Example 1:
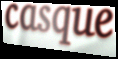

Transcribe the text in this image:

casque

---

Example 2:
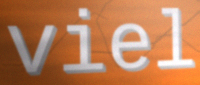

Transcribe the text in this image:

viel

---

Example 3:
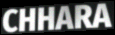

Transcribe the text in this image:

CHHARA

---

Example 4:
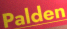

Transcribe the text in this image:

Palden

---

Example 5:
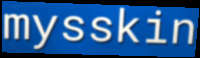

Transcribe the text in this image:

mysskin